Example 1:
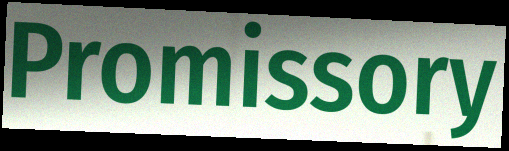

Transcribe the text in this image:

Promissory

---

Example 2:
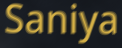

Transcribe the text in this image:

Saniya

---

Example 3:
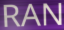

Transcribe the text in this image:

RAN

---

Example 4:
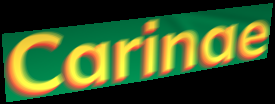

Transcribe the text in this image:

Carinae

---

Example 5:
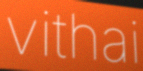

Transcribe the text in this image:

vithai